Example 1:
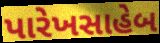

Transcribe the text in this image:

પારેખસાહેબ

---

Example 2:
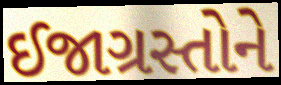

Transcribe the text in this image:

ઈજાગ્રસ્તોને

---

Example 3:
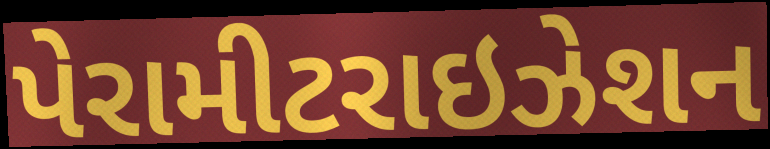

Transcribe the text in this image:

પેરામીટરાઇઝેશન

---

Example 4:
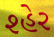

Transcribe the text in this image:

શ્હેર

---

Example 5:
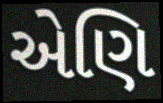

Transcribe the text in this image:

એણિ